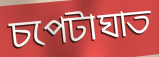
চপেটাঘাত